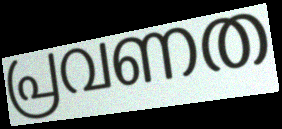
പ്രവണത